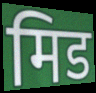
मिड